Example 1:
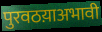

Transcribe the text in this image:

पुरवठय़ाअभावी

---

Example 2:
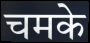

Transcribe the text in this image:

चमके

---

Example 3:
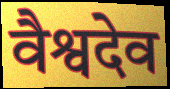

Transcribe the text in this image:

वैश्वदेव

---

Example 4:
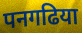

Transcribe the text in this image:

पनगढिया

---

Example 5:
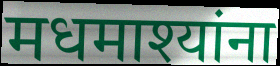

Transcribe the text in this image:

मधमाश्यांना